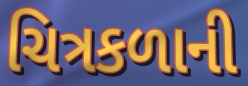
ચિત્રકળાની